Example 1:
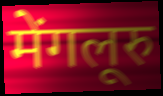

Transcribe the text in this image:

मेंगलूरु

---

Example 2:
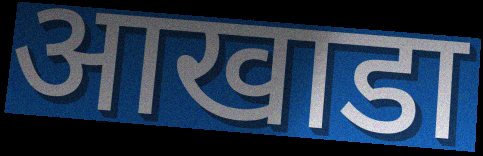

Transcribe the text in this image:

आखाडा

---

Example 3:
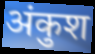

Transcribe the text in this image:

अंकुश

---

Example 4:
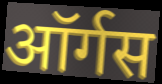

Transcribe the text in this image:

ऑर्गस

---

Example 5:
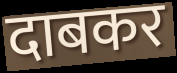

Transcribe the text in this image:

दाबकर